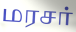
மரசர்